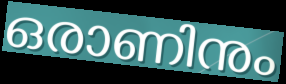
ഒരാണിനും